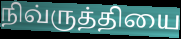
நிவ்ருத்தியை